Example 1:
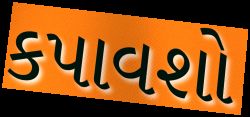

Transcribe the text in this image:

કપાવશો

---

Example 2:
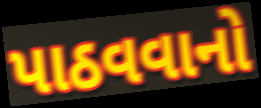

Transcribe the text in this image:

પાઠવવાનો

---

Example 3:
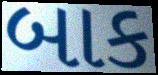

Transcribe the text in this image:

બાક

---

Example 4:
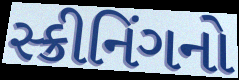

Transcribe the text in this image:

સ્ક્રીનિંગનો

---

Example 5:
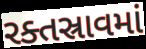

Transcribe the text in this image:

રક્તસ્રાવમાં